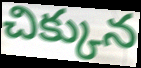
చిక్కున